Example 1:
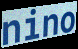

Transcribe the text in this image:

nino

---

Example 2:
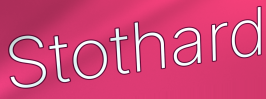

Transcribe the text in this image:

Stothard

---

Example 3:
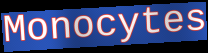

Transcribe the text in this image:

Monocytes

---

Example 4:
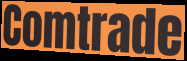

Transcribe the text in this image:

Comtrade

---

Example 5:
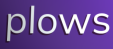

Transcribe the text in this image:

plows